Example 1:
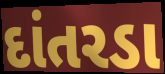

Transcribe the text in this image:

દાંતરડા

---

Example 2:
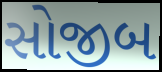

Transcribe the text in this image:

સોજીબ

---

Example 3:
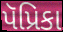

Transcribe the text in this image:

પૅપ્રિકા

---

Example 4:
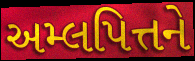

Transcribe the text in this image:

અમ્લપિત્તને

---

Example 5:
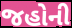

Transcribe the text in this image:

જહોની